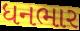
ધનભાર